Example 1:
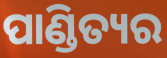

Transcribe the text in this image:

ପାଣ୍ଡିତ୍ୟର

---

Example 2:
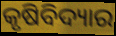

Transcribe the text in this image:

କୃଷିବିଦ୍ୟାର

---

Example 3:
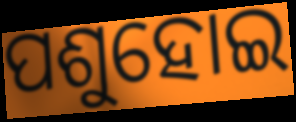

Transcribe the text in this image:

ପଶୁହୋଇ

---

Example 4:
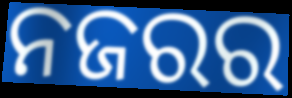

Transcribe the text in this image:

ନଜରର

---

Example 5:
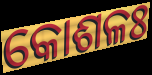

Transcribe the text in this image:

କୋଶଳଃ